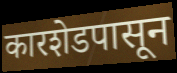
कारशेडपासून